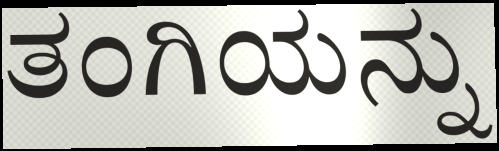
ತಂಗಿಯನ್ನು